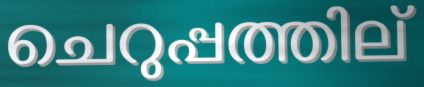
ചെറുപ്പത്തില്